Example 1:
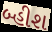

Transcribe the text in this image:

બ્હીશ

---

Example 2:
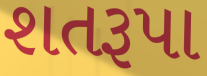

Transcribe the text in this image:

શતરૂપા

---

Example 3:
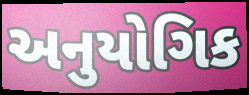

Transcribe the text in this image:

અનુયોગિક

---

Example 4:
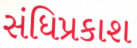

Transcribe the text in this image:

સંધિપ્રકાશ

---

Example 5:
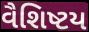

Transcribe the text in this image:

વૈશિષ્ટય